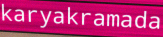
karyakramada